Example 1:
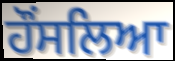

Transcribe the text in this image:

ਹੌਂਸਲਿਆ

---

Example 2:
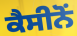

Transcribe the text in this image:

ਕੈਸੀਨੋਂ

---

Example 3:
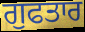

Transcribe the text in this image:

ਗੁਫਤਾਰ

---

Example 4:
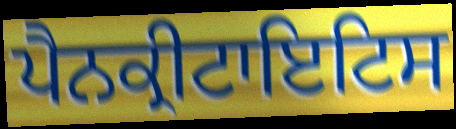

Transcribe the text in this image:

ਪੈਨਕ੍ਰੀਟਾਇਟਿਸ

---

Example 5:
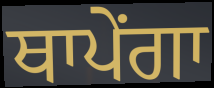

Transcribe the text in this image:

ਥਾਪੇਂਗਾ